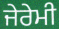
ਜੇਰੇਮੀ